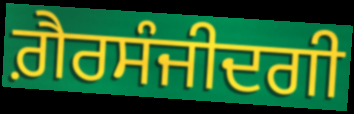
ਗ਼ੈਰਸੰਜੀਦਗੀ